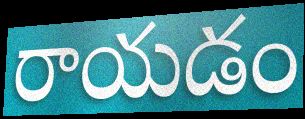
రాయడం